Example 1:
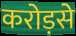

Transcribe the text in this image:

करोड़से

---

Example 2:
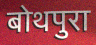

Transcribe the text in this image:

बोथपुरा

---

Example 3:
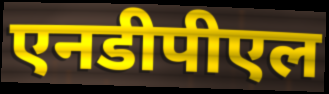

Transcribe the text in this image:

एनडीपीएल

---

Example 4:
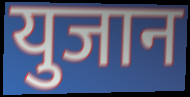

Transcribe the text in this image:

युजान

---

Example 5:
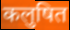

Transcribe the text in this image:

कलुषित